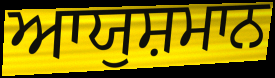
ਆਯੁਸ਼ਮਾਨ